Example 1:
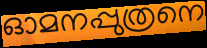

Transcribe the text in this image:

ഓമനപ്പുത്രനെ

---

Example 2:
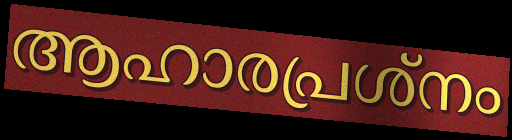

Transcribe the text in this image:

ആഹാരപ്രശ്നം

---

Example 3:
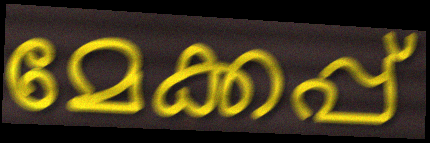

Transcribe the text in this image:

മേക്കപ്പ്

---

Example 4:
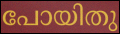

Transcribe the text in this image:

പോയിതു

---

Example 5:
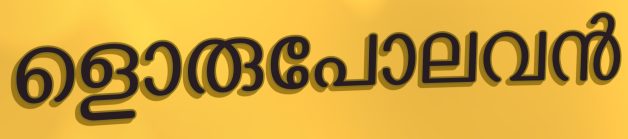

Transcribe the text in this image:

ളൊരുപോലവൻ